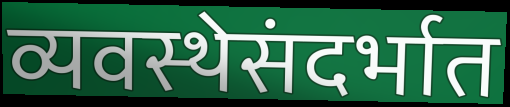
व्यवस्थेसंदर्भात